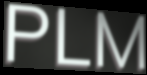
PLM